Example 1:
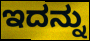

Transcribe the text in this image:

ಇದನ್ನು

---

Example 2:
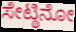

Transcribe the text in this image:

ಸೇಟ್ಠಿನೋ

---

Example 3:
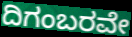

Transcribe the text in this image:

ದಿಗಂಬರವೇ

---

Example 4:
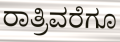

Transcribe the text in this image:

ರಾತ್ರಿವರೆಗೂ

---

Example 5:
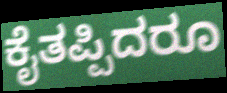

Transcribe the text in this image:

ಕೈತಪ್ಪಿದರೂ